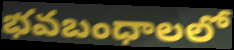
భవబంధాలలో